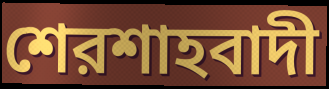
শেরশাহবাদী